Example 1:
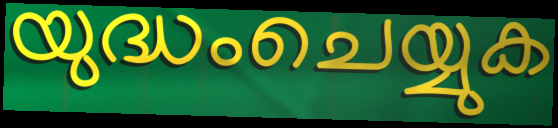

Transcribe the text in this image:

യുദ്ധംചെയ്യുക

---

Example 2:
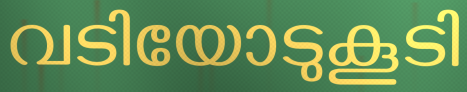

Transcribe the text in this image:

വടിയോടുകൂടി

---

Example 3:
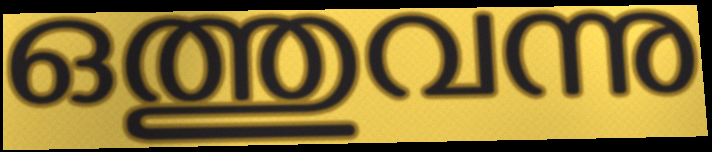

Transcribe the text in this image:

ഒത്തുവന്നു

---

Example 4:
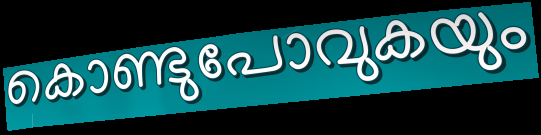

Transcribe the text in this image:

കൊണ്ടുപോവുകയും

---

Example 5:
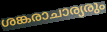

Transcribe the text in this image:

ശങ്കരാചാര്യരും